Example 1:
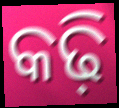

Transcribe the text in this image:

କଢ଼ି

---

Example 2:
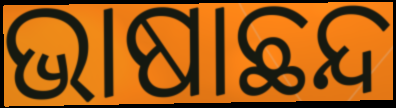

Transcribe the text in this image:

ଭାଷାଛନ୍ଦ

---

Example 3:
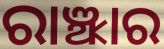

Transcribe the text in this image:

ରାଞ୍ଝାର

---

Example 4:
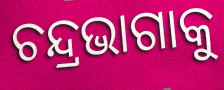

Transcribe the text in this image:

ଚନ୍ଦ୍ରଭାଗାକୁ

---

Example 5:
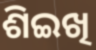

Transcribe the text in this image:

ଶିଇଖି